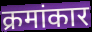
क्रमांकार